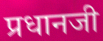
प्रधानजी